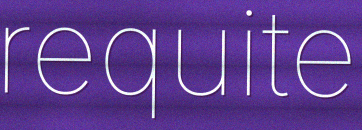
requite